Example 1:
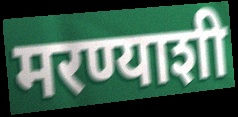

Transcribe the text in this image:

मरण्याशी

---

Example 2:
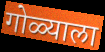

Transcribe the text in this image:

गोळ्याला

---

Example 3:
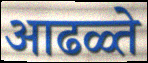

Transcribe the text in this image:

आढळ्ते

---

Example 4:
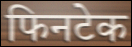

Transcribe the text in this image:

फिनटेक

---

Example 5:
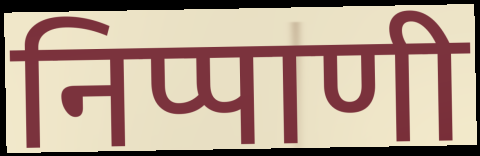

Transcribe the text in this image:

निप्पाणी